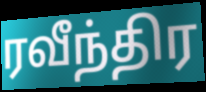
ரவீந்திர